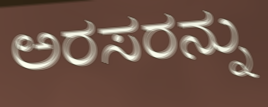
ಅರಸರನ್ನು